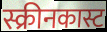
स्क्रीनकास्ट